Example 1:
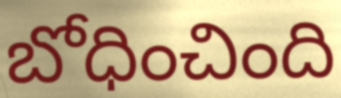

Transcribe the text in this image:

బోధించింది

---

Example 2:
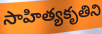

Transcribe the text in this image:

సాహిత్యకృతిని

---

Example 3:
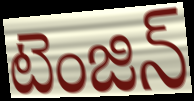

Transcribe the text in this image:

టెంజిన్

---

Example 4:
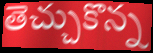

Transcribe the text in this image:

తెచ్చుకొన్న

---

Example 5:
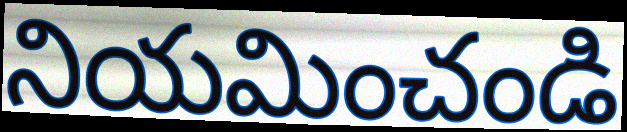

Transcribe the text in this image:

నియమించండి